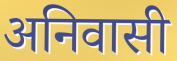
अनिवासी